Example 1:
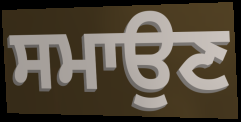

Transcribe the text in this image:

ਸਮਾਉਣ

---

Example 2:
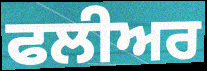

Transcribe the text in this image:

ਫਲੀਅਰ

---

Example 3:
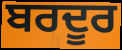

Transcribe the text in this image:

ਬਰਦੂਰ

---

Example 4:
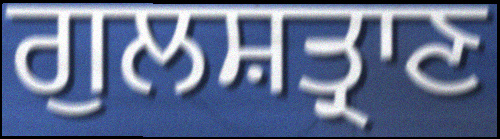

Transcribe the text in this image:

ਗੁਲਸ਼ਤ੍ਰਾਣ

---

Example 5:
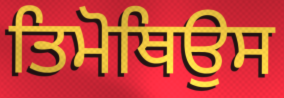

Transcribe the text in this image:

ਤਿਮੋਥਿਉਸ